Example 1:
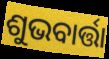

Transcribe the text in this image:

ଶୁଭବାର୍ତ୍ତା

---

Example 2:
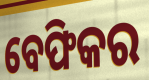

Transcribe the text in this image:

ବେଫିକର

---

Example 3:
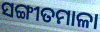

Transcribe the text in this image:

ସଙ୍ଗୀତମାଳା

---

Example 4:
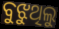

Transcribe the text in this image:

ବୁଝୁଥିଲୁ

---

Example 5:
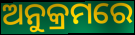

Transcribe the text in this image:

ଅନୁକ୍ରମରେ